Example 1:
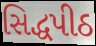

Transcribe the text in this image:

સિદ્ધપીઠ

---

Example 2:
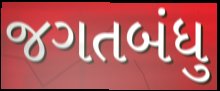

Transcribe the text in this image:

જગતબંધુ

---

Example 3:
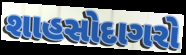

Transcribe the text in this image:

શાહસોદાગરો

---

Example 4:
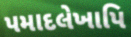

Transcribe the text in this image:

પમાદલેખાપિ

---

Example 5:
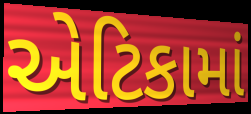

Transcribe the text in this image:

એટિકામાં